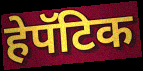
हेपॅटिक